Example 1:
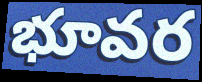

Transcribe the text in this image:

భూవర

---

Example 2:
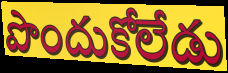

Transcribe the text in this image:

పొందుకోలేడు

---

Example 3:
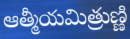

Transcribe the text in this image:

ఆత్మీయమిత్రుణ్ణి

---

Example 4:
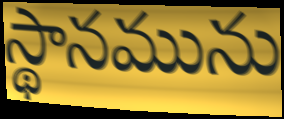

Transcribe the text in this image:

స్థానమును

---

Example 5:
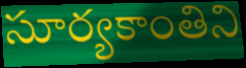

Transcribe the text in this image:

సూర్యకాంతిని